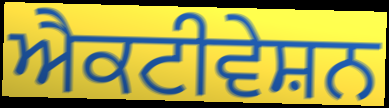
ਐਕਟੀਵੇਸ਼ਨ